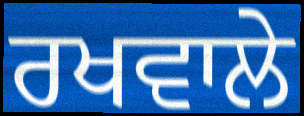
ਰਖਵਾਲੇ